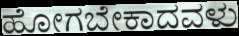
ಹೋಗಬೇಕಾದವಳು